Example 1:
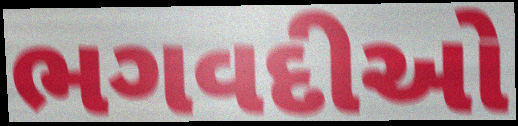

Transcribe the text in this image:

ભગવદીઓ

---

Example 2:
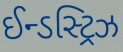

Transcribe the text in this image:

ઈન્ડસ્ટ્રિઝ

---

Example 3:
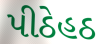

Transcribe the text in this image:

પીઠેહઠ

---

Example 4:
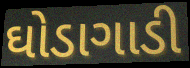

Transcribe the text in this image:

ઘોડાગાડી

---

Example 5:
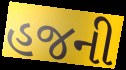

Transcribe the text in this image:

હજની